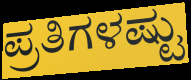
ಪ್ರತಿಗಳಷ್ಟು